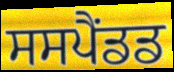
ਸਸਪੈਂਡਡ